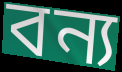
বন্য